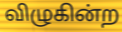
விழுகின்ற